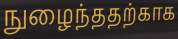
நுழைந்ததற்காக